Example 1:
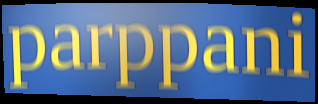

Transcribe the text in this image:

parppani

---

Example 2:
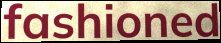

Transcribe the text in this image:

fashioned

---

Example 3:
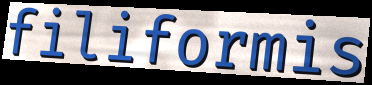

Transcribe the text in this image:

filiformis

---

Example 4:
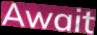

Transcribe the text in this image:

Await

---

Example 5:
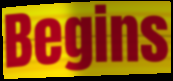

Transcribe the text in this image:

Begins